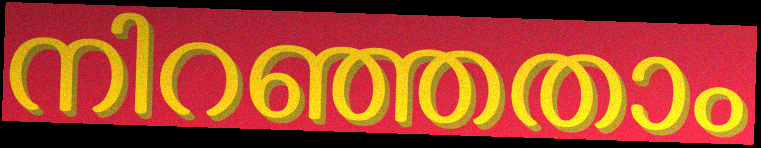
നിറഞ്ഞതാം